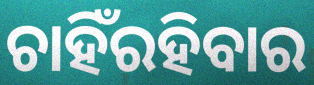
ଚାହିଁରହିବାର